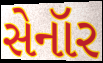
સેનૉર